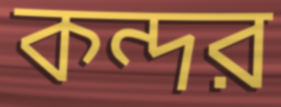
কন্দর